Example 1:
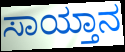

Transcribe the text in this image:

ಸಾಯ್ತಾನ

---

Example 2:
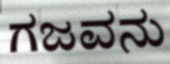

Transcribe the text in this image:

ಗಜವನು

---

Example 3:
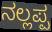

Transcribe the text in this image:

ನಲ್ಲಪ್ಪ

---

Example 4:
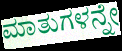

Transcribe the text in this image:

ಮಾತುಗಳನ್ನೇ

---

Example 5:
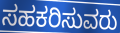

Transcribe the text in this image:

ಸಹಕರಿಸುವರು